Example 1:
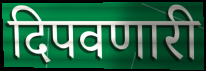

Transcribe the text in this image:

दिपवणारी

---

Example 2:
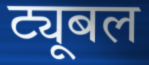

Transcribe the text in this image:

ट्यूबल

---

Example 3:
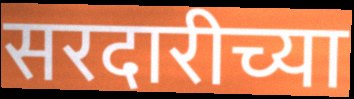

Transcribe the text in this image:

सरदारीच्या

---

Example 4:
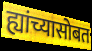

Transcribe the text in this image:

ह्यांच्यासोबत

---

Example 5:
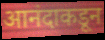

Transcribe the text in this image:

आनंदाकडून